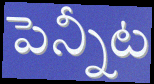
పెన్నీట